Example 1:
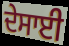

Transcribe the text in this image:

ਦੇਸਾਈ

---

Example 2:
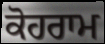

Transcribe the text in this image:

ਕੋਹਰਾਮ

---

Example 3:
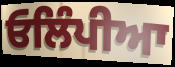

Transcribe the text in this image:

ਓਲਿੰਪੀਆ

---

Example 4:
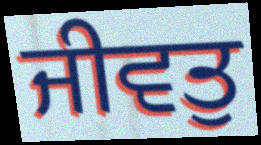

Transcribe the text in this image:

ਜੀਵਤੁ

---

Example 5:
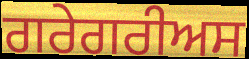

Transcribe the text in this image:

ਗਰੇਗਰੀਅਸ